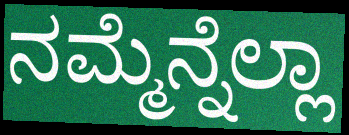
ನಮ್ಮೆನ್ನೆಲ್ಲಾ